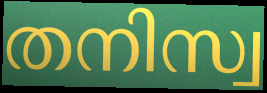
തനിസ്വ